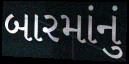
બારમાંનું